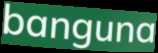
banguna